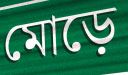
মোড়ে